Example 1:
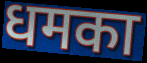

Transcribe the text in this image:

धमका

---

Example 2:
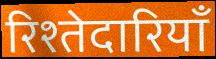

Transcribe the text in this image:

रिश्तेदारियाँ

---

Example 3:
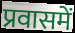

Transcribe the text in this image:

प्रवासमें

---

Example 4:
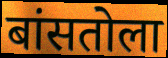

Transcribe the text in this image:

बांसतोला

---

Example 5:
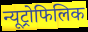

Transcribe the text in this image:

न्यूट्रोफिलिक